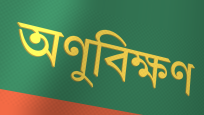
অণুবিক্ষণ